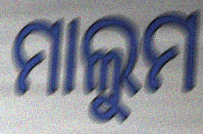
ମାଲୁମ